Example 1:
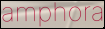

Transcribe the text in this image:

amphora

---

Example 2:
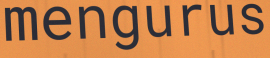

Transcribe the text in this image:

mengurus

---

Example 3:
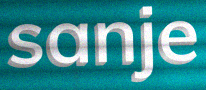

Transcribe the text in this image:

sanje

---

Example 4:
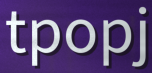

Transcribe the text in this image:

tpopj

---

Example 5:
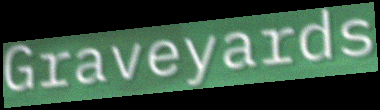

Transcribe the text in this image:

Graveyards